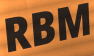
RBM